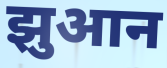
झुआन